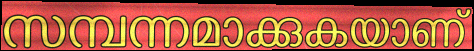
സമ്പന്നമാക്കുകയാണ്